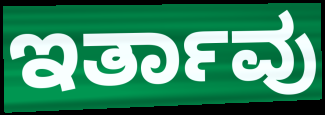
ಇರ್ತಾವು